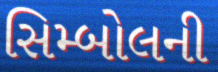
સિમ્બોલની